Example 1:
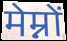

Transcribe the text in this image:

मेम्नों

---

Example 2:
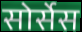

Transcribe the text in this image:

सोर्सेस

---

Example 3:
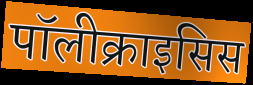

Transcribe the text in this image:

पॉलीक्राइसिस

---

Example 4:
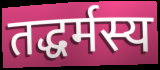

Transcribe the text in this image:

तद्धर्मस्य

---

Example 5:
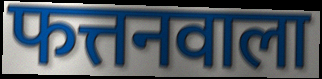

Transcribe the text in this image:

फत्तनवाला